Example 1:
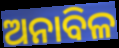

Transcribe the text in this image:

ଅନାବିଳ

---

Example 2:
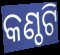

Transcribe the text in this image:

କଣ୍ଠଟି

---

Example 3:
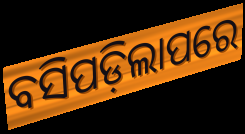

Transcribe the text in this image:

ବସିପଡ଼ିଲାପରେ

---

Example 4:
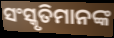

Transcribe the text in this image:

ସଂସ୍କୃତିମାନଙ୍କ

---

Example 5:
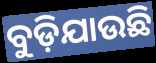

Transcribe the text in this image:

ବୁଡ଼ିଯାଉଛି